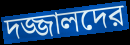
দজ্জালদের